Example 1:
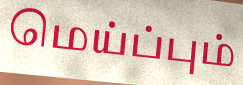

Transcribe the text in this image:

மெய்ப்பும்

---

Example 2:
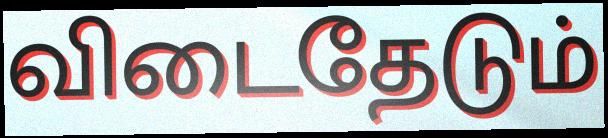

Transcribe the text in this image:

விடைதேடும்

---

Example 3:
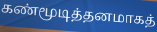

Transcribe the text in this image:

கண்மூடித்தனமாகத்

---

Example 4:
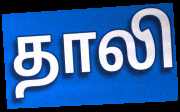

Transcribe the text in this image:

தாலி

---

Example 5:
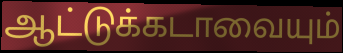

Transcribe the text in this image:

ஆட்டுக்கடாவையும்